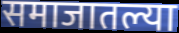
समाजातल्या